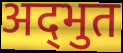
अद्‍भुत